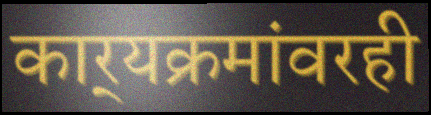
कार्यक्रमांवरही